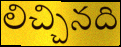
లిచ్చినది